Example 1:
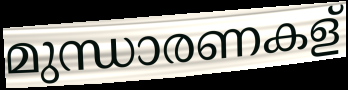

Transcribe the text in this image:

മുന്ധാരണകള്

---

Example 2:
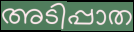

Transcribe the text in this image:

അടിപ്പാത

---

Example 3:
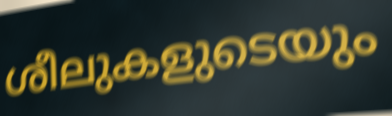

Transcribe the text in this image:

ശീലുകളുടെയും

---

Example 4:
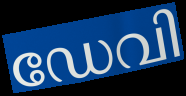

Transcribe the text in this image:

ഡേവി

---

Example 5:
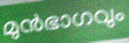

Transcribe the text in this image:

മുൻഭാഗവും